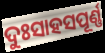
ଦୁଃସାହସପୂର୍ଣ୍ଣ